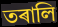
তৰালি